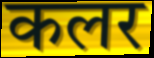
कलर